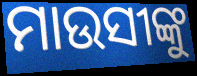
ମାଉସୀଙ୍କୁ